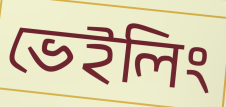
ভেইলিং